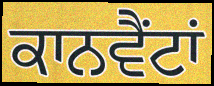
ਕਾਨਵੈਂਟਾਂ